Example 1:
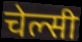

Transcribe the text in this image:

चेल्सी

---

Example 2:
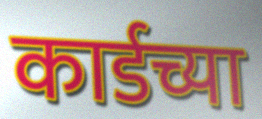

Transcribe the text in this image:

कार्डच्या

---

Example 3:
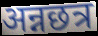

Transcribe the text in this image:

अन्नछत्र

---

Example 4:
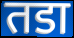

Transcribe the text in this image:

तडा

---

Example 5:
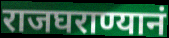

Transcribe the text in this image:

राजघराण्यानं